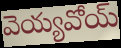
వెయ్యవోయ్